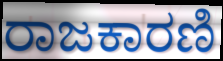
ರಾಜಕಾರಣಿ